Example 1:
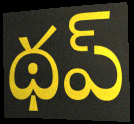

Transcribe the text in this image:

థప్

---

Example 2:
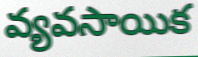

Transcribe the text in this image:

వ్యవసాయిక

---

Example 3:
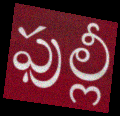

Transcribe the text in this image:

ఫుల్లీ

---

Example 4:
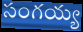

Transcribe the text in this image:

సంగయ్య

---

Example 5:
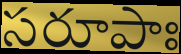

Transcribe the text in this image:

సరూపాః